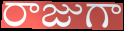
రాజుగా